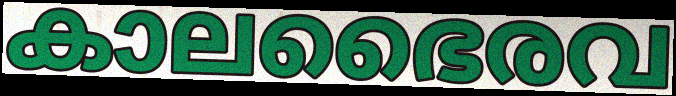
കാലഭൈരവ